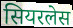
सियरलेस